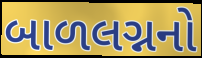
બાળલગ્નનો